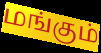
மங்கும்